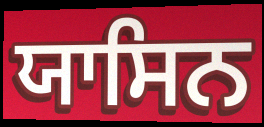
ਯਾਸਿਨ